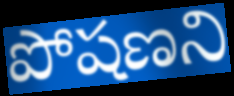
పోషణని